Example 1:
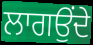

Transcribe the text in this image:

ਲਾਗਉਂਦੇ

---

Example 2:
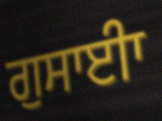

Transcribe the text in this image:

ਗੁਸਾਈਾ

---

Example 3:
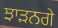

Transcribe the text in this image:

ਝਾੜਨਗੇ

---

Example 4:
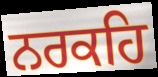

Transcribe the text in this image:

ਨਰਕਹਿ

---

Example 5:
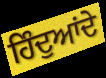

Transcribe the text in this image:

ਹਿੰਦੁਆਂਦੇ